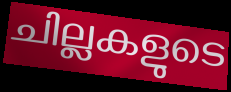
ചില്ലകളുടെ